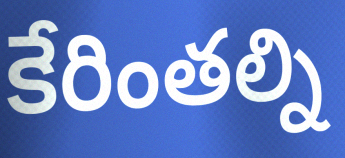
కేరింతల్ని